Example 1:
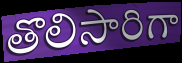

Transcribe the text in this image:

తొలిసారిగా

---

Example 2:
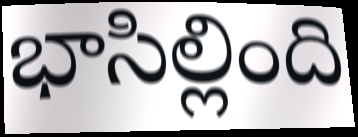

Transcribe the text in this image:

భాసిల్లింది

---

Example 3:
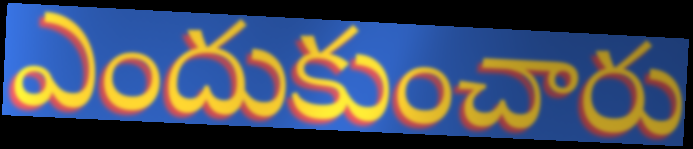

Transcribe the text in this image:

ఎందుకుంచారు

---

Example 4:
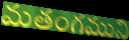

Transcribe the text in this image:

మతంగముని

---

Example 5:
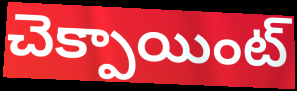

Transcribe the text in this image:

చెక్పాయింట్